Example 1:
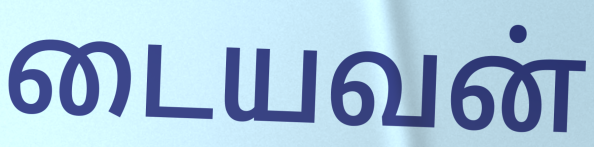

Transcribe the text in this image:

டையவன்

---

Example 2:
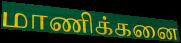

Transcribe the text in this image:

மாணிக்கனை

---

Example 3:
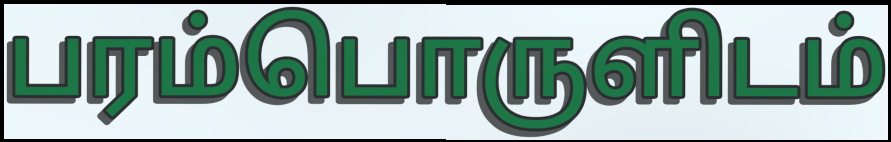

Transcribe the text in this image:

பரம்பொருளிடம்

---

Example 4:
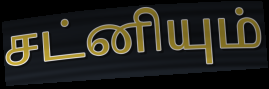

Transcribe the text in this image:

சட்னியும்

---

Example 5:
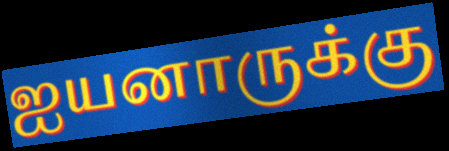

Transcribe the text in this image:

ஐயனாருக்கு